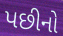
પછીનો